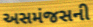
અસમંજસની